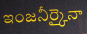
ఇంజనీర్కైనా